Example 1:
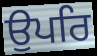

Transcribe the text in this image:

ਉਪਰਿ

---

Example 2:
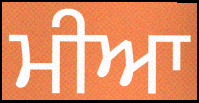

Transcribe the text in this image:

ਮੀਆ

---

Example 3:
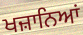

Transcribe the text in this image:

ਖਜ਼ਾਨਿਆਂ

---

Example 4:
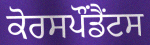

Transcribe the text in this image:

ਕੋਰਸਪੌਂਡੈਂਟਸ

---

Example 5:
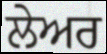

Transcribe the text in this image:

ਲੇਅਰ